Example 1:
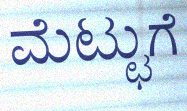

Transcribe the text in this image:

ಮೆಟ್ಟುಗೆ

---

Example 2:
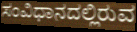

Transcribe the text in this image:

ಸಂವಿಧಾನದಲ್ಲಿರುವ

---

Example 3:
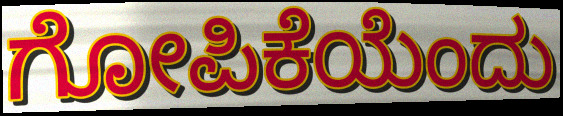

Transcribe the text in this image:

ಗೋಪಿಕೆಯೆಂದು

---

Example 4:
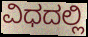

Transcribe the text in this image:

ವಿಧದಲ್ಲಿ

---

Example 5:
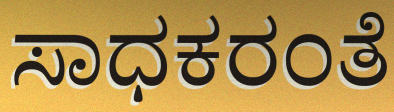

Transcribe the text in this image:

ಸಾಧಕರಂತೆ